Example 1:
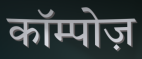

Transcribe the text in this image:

कॉम्पोज़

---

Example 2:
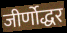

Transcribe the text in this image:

जीर्णोद्धर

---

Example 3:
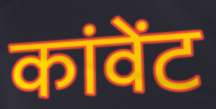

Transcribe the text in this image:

कांवेंट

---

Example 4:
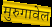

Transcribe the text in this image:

मुरुगावेल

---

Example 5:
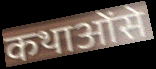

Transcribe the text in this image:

कथाओंसे